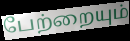
பேற்றையும்